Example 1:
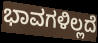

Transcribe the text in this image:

ಭಾವಗಳಿಲ್ಲದೆ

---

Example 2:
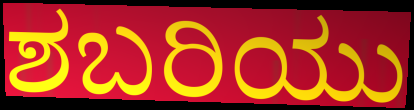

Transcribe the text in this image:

ಶಬರಿಯು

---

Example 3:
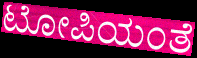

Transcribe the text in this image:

ಟೋಪಿಯಂತೆ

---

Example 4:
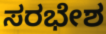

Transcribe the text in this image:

ಸರಭೇಶ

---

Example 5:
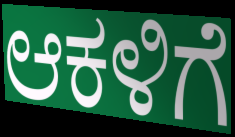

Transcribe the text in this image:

ಆಕಳಿಗೆ